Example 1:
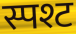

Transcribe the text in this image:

स्पश्ट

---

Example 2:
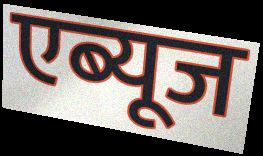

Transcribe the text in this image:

एब्यूज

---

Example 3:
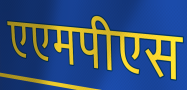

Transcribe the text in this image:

एएमपीएस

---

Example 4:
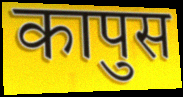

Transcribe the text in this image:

कापुस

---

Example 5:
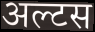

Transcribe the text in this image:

अल्टस